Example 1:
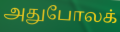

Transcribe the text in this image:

அதுபோலக்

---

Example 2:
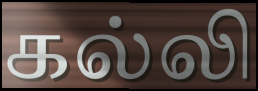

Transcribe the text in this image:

கல்லி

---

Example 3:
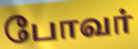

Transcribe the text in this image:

போவர்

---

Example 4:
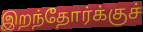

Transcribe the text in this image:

இறந்தோர்க்குச்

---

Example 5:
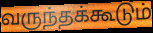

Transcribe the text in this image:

வருந்தக்கூடும்